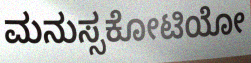
ಮನುಸ್ಸಕೋಟಿಯೋ